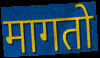
मागतो